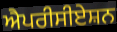
ਐਪਰੀਸੀਏਸ਼ਨ